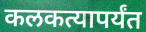
कलकत्यापर्यंत